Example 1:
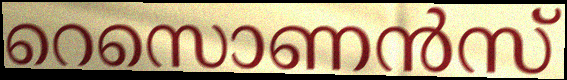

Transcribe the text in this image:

റെസൊണൻസ്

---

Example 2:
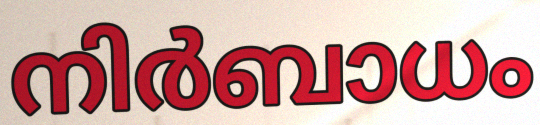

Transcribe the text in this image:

നിർബാധം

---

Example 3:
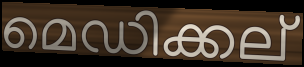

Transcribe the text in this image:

മെഡിക്കല്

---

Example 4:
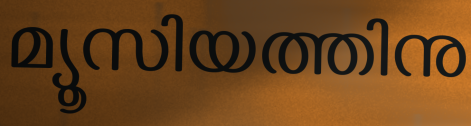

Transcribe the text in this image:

മ്യൂസിയത്തിനു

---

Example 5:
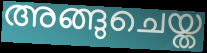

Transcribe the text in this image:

അങ്ങുചെയ്ത